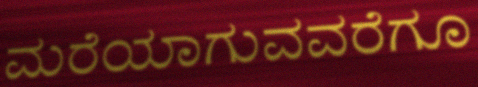
ಮರೆಯಾಗುವವರೆಗೂ